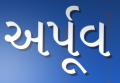
અર્પૂવ